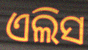
ଏଲିସ